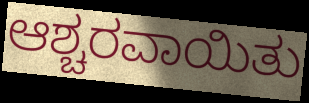
ಆಶ್ಚರವಾಯಿತು